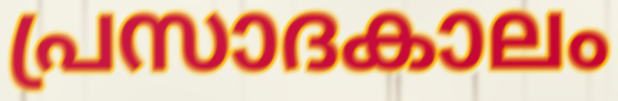
പ്രസാദകാലം